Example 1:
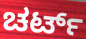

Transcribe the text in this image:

ಚರ್ಟ್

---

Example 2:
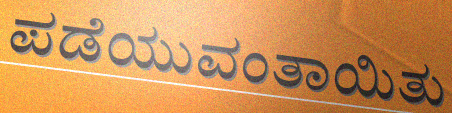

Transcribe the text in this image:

ಪಡೆಯುವಂತಾಯಿತು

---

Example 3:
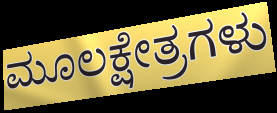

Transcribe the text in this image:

ಮೂಲಕ್ಷೇತ್ರಗಳು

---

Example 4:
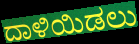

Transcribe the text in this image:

ದಾಳಿಯಿಡಲು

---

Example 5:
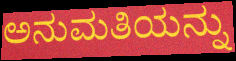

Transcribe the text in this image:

ಅನುಮತಿಯನ್ನು